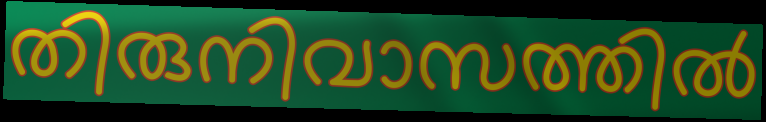
തിരുനിവാസത്തിൽ